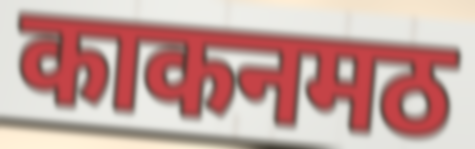
काकनमठ